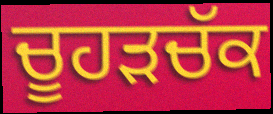
ਚੂਹਡ਼ਚੱਕ